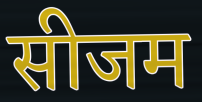
सीजम